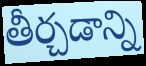
తీర్చడాన్ని